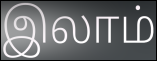
இலாம்